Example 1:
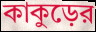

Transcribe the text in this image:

কাকুড়ের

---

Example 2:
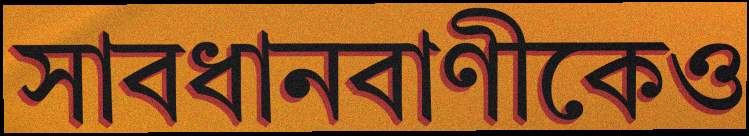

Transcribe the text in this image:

সাবধানবাণীকেও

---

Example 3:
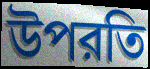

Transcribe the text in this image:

উপরতি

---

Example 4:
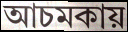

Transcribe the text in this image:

আচমকায়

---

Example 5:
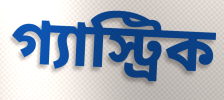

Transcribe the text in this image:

গ্যাস্ট্রিক